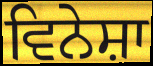
ਵਿਨੇਸ਼ਾ